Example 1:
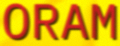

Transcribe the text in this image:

ORAM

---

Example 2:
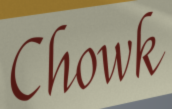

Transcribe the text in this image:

Chowk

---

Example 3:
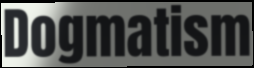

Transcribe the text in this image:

Dogmatism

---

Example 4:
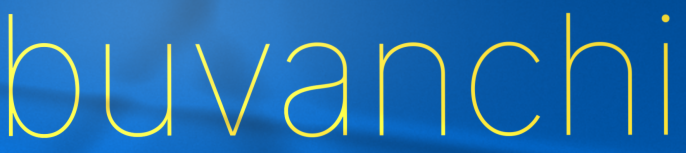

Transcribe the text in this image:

buvanchi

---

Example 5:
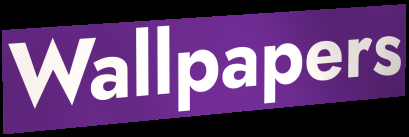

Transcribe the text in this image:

Wallpapers